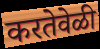
करतेवेळी